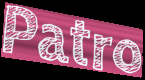
Patro